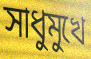
সাধুমুখে